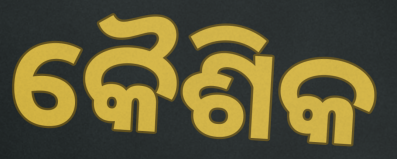
କୈଶିକ